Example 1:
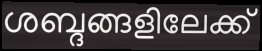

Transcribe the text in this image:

ശബ്ദങ്ങളിലേക്ക്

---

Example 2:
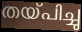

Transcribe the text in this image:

തയ്പിച്ചു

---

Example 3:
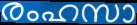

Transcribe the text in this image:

രംഹസാ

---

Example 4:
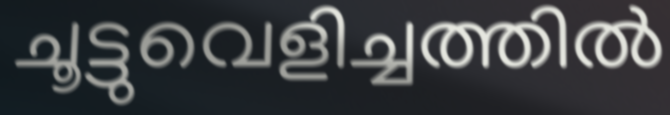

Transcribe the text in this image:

ചൂട്ടുവെളിച്ചത്തിൽ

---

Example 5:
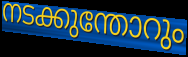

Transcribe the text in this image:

നടക്കുന്തോറും